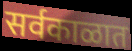
सर्वकाळात